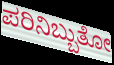
ಪರಿನಿಬ್ಬುತೋ